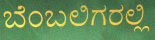
ಬೆಂಬಲಿಗರಲ್ಲಿ